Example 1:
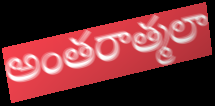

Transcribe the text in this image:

అంతరాత్మలా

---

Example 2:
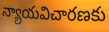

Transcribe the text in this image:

న్యాయవిచారణకు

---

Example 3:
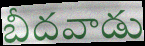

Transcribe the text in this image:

బీదవాడు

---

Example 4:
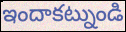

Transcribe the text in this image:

ఇందాకట్నుండి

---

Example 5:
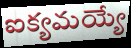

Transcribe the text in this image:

ఐక్యమయ్యే